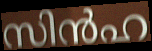
സിൻഹ